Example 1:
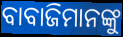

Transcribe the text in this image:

ବାବାଜିମାନଙ୍କୁ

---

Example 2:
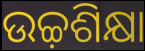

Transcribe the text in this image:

ଉଚ୍ଚ଼ଶିକ୍ଷା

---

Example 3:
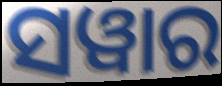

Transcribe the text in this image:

ସୱାର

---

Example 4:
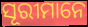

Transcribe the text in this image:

ସୂରୀମାନେ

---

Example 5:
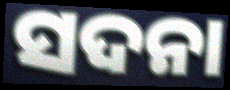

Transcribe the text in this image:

ସଦନା